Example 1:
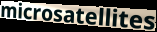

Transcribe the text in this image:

microsatellites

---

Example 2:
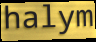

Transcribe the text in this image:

halym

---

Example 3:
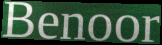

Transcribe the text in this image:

Benoor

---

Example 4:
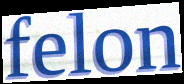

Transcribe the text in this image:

felon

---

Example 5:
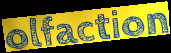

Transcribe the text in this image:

olfaction